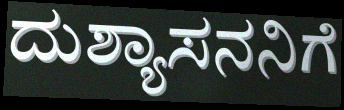
ದುಶ್ಯಾಸನನಿಗೆ